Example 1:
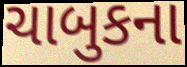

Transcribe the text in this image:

ચાબુકના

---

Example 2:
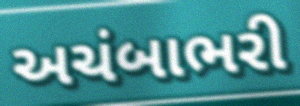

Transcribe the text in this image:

અચંબાભરી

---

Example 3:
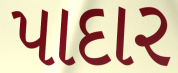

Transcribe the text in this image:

પાદાર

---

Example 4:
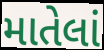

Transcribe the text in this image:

માતેલાં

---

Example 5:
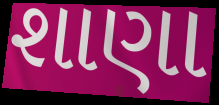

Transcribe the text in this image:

શાણા